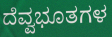
ದೆವ್ವಭೂತಗಳ